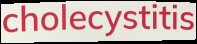
cholecystitis